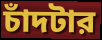
চাঁদটার